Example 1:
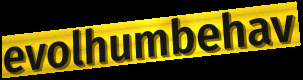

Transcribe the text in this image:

evolhumbehav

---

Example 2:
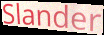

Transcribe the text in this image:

Slander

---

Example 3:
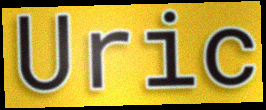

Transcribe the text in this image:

Uric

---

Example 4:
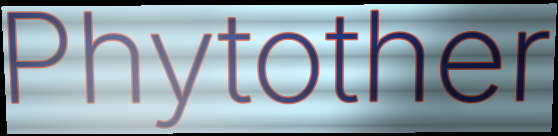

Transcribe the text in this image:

Phytother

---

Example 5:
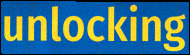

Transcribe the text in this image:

unlocking